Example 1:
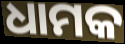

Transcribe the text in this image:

ଧାମକ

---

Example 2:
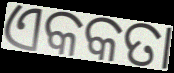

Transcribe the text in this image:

ଏକକତା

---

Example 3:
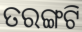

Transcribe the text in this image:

ତରଙ୍ଗଟି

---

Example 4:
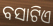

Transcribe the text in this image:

ବସାଟିଏ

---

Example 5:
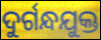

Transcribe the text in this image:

ଦୁର୍ଗନ୍ଧଯୁକ୍ତ